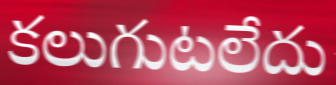
కలుగుటలేదు